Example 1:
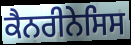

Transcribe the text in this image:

ਕੈਨਰੀਨੇਸਿਸ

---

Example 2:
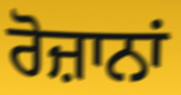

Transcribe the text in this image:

ਰੋਜ਼ਾਨਾਂ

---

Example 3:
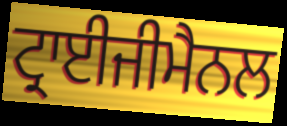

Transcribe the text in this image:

ਟ੍ਰਾਈਜੀਮੈਨਲ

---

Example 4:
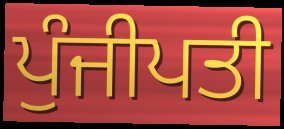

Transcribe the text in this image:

ਪੁੰਜੀਪਤੀ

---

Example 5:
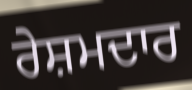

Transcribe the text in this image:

ਰੇਸ਼ਮਦਾਰ